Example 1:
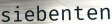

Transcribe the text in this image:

siebenten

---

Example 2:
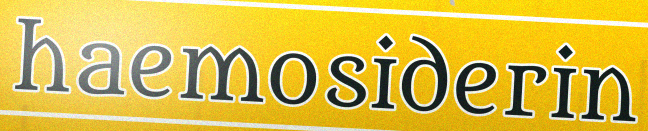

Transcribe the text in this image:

haemosiderin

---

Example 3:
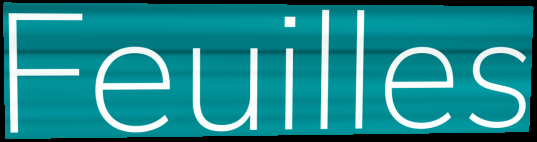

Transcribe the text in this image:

Feuilles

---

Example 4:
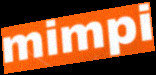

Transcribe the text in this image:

mimpi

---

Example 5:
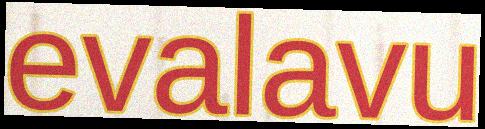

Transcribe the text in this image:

evalavu